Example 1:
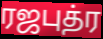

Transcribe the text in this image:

ரஜபுத்ர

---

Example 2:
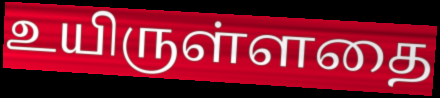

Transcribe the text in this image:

உயிருள்ளதை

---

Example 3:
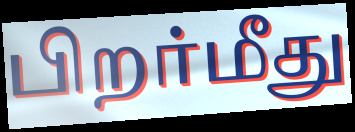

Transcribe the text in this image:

பிறர்மீது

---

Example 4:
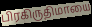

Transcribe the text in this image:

பிரகிருதிமாயை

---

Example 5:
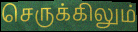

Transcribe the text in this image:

செருக்கிலும்